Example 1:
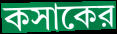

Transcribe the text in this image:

কসাকের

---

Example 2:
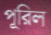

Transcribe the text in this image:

পূরিল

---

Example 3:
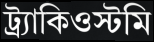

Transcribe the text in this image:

ট্র্যাকিওস্টমি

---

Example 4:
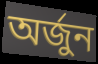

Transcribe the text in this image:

অর্জুন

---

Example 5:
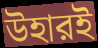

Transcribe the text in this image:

উহারই